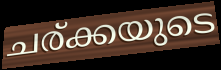
ചര്ക്കയുടെ